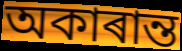
অকাৰান্ত